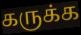
கருக்க